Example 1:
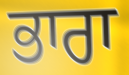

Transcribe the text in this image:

ਭਾਰਾ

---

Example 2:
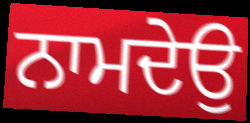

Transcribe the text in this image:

ਨਾਮਦੇਉ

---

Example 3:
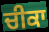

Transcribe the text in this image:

ਚੀਕਾ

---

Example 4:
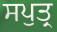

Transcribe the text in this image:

ਸਪੁਤ੍ਰ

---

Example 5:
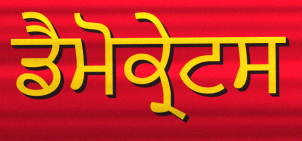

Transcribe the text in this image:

ਡੈਮੋਕ੍ਰੇਟਸ